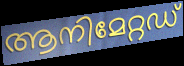
ആനിമേറ്റഡ്